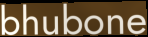
bhubone